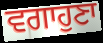
ਵਗਾਹੁਣਾ